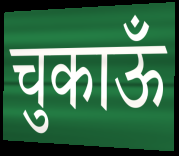
चुकाऊँ